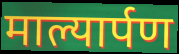
माल्यार्पण